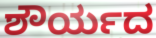
ಶೌರ್ಯದ